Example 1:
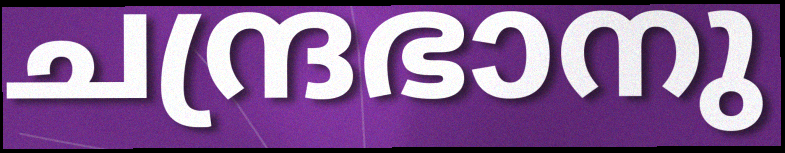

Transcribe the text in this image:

ചന്ദ്രഭാനു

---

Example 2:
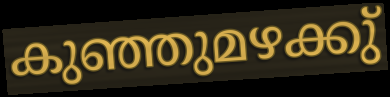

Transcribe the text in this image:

കുഞ്ഞുമഴക്കു്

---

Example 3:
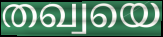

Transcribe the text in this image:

തഖ്വയെ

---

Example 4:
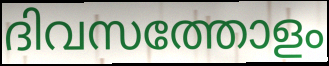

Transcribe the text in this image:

ദിവസത്തോളം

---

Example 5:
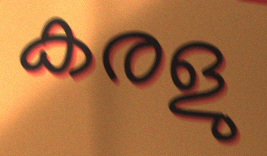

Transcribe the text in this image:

കരളു